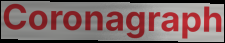
Coronagraph